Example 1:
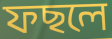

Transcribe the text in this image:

ফছলে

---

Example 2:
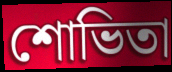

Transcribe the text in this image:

শোভিতা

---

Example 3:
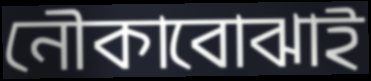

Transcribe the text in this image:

নৌকাবোঝাই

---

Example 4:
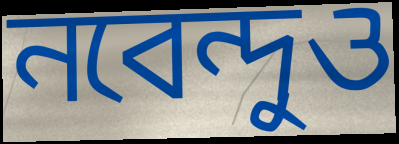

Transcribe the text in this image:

নবেন্দুও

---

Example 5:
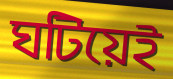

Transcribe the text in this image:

ঘটিয়েই